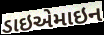
ડાઇએમાઇન